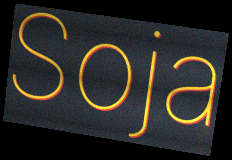
Soja